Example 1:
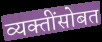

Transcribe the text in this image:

व्यक्‍तींसोबत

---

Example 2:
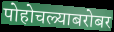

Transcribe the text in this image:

पोहोचल्याबरोबर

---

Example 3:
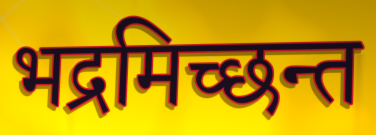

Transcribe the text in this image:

भद्रमिच्छन्त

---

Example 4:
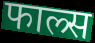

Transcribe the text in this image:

फाल्स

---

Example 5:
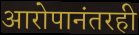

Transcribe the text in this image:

आरोपानंतरही